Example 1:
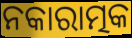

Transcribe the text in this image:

ନକାରାତ୍ମକ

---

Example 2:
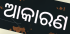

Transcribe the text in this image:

ଆକାରଣ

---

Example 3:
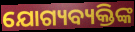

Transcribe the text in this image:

ଯୋଗ୍ୟବ୍ୟକ୍ତିଙ୍କ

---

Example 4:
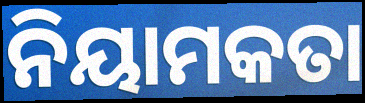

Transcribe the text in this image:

ନିୟାମକତା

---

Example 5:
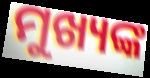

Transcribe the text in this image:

ମୁଖ୍ୟଙ୍କ